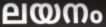
ലയനം